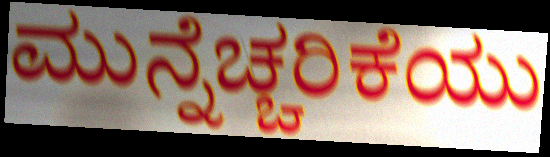
ಮುನ್ನೆಚ್ಚರಿಕೆಯು